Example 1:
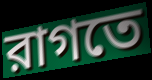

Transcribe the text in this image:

রাগতে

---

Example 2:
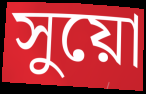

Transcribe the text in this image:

সুয়ো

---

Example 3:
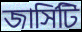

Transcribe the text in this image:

জার্সিটি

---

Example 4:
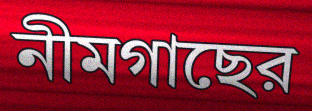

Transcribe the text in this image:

নীমগাছের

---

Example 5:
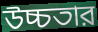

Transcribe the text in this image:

উচ্চতার